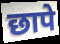
छापे